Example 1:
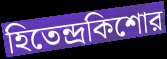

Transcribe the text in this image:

হিতেন্দ্রকিশোর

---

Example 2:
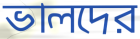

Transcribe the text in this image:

ভালদের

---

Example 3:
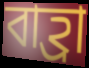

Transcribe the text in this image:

বাহ্রা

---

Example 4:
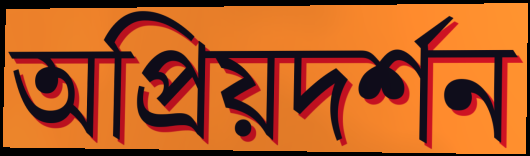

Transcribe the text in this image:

অপ্রিয়দর্শন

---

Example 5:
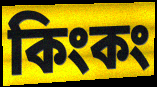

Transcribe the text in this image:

কিংকং